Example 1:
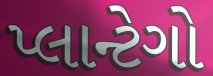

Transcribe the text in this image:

પ્લાન્ટેગો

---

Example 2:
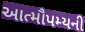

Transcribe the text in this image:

આત્મૌપમ્યની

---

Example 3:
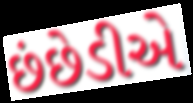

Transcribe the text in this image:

છંછેડીએ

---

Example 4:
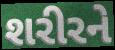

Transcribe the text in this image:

શરીરને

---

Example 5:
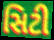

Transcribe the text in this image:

સિટી